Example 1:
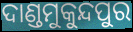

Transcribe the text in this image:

ଦାଣ୍ଡମୁକୁନ୍ଦପୁର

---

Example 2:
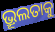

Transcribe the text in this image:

ଭ୍ରୂଲତାକୁ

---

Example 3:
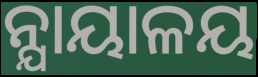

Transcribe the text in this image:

ନ୍ଯାୟାଳୟ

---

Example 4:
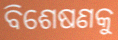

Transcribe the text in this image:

ବିଶେଷଣକୁ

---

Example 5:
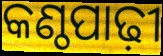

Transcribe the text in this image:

କଣ୍ଠପାଢ଼ୀ